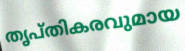
തൃപ്തികരവുമായ